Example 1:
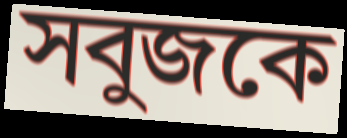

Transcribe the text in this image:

সবুজকে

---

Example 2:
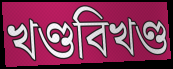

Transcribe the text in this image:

খণ্ডবিখণ্ড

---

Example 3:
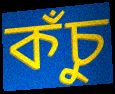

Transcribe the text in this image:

কঁচু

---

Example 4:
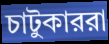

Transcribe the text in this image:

চাটুকাররা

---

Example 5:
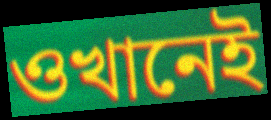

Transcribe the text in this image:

ওখানেই